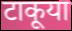
टाकूया